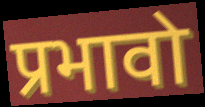
प्रभावो